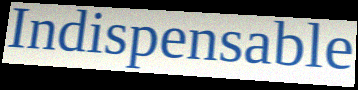
Indispensable